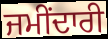
ਜਮੀਂਦਾਰੀ